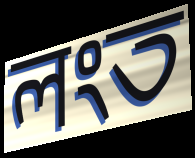
লংত